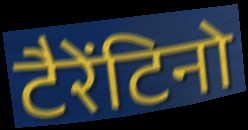
टैरेंटिनो